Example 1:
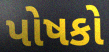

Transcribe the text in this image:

પોષકો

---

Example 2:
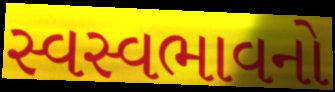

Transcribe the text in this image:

સ્વસ્વભાવનો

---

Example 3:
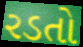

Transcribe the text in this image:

રડતો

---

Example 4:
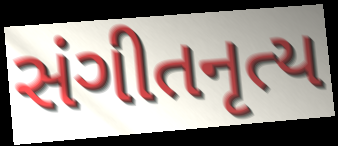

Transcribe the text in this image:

સંગીતનૃત્ય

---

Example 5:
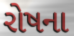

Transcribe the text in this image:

રોષના